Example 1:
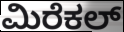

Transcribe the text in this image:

ಮಿರೆಕಲ್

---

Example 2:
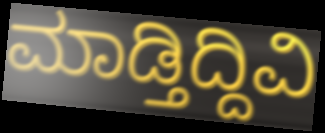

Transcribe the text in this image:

ಮಾಡ್ತಿದ್ದಿವಿ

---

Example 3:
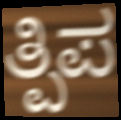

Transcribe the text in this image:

ತ್ಪಿಪ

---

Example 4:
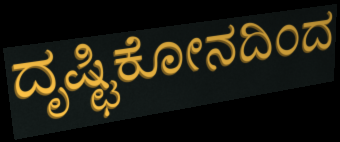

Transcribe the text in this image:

ದೃಷ್ಟಿಕೋನದಿಂದ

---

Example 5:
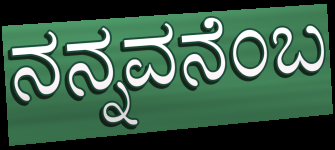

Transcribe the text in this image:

ನನ್ನವನೆಂಬ